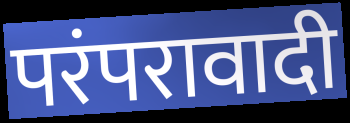
परंपरावादी